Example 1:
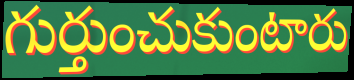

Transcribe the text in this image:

గుర్తుంచుకుంటారు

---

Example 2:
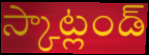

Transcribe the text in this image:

స్కాట్లండ్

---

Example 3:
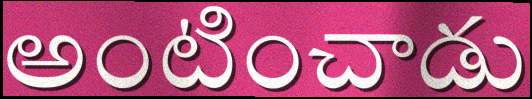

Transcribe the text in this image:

అంటించాడు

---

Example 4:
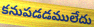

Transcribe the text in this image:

కనుపడడములేదు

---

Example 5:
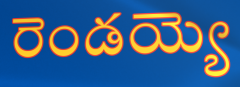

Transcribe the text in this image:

రెండయ్యె